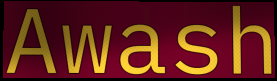
Awash